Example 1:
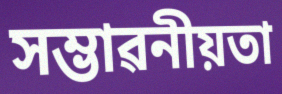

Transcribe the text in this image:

সম্ভাৱনীয়তা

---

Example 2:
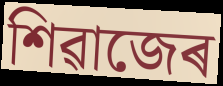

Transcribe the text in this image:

শিৱাজেৰ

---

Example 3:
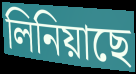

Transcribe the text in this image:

লিনিয়াছে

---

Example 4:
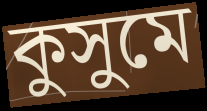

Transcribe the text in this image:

কুসুমে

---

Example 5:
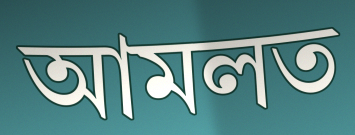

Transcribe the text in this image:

আমলত